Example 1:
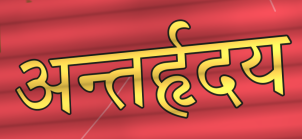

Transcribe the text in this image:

अन्तर्हृदय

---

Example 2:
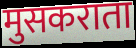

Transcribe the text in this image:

मुसकराता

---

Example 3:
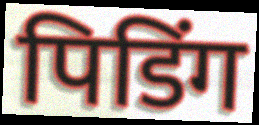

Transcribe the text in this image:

पिडिंग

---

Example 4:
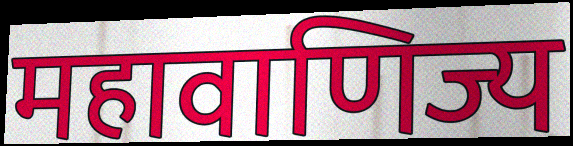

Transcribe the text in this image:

महावाणिज्‍य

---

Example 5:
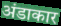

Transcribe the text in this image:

अंडाकार